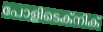
പോളിടെക്നിക്